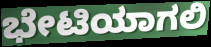
ಭೇಟಿಯಾಗಲಿ